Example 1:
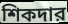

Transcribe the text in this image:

শিকদার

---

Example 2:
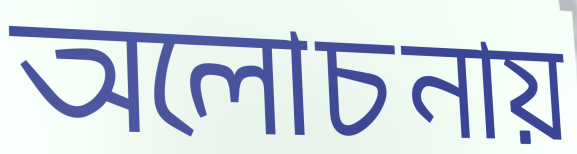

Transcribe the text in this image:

অলোচনায়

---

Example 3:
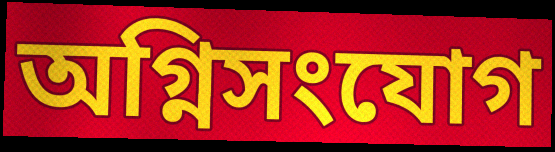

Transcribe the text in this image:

অগ্নিসংযোগ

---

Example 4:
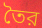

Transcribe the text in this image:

তৈর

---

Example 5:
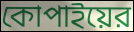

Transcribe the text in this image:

কোপাইয়ের